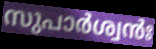
സുപാർശ്വൻഃ